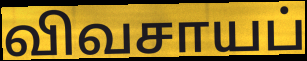
விவசாயப்